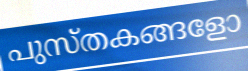
പുസ്തകങ്ങളോ